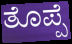
ತೊಪ್ಪೆ